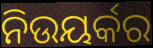
ନିଉୟର୍କର